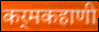
कर्मकहाणी